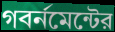
গবর্নমেন্টের